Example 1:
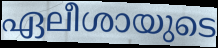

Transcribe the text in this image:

ഏലീശായുടെ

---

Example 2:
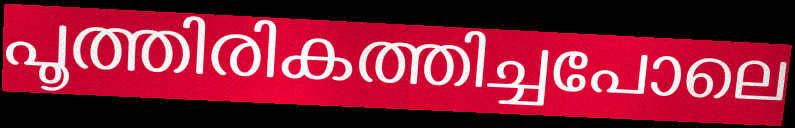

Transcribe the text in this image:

പൂത്തിരികത്തിച്ചപോലെ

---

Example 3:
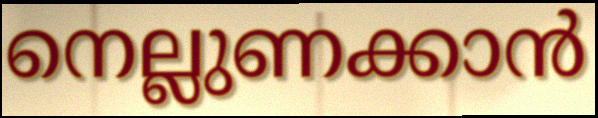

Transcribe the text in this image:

നെല്ലുണക്കാൻ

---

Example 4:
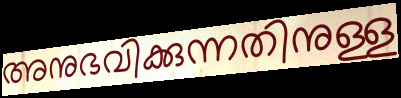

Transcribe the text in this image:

അനുഭവിക്കുന്നതിനുള്ള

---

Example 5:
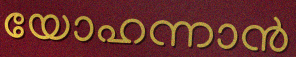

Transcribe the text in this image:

യോഹന്നാൻ